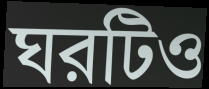
ঘরটিও